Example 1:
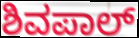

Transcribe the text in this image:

ಶಿವಪಾಲ್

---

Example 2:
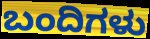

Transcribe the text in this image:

ಬಂದಿಗಳು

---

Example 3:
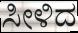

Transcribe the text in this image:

ಸೀಳಿದ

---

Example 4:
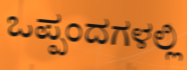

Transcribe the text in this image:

ಒಪ್ಪಂದಗಳಲ್ಲಿ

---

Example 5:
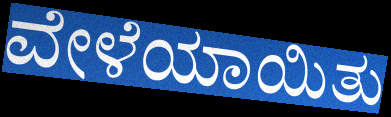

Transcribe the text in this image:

ವೇಳೆಯಾಯಿತು